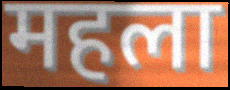
महला